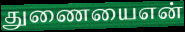
துணையைஎன்